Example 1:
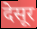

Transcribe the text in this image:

देसूर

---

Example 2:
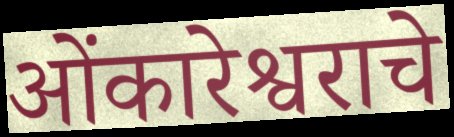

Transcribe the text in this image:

ओंकारेश्वराचे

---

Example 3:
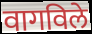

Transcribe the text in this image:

वागविले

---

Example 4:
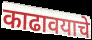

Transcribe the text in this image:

काढावयाचे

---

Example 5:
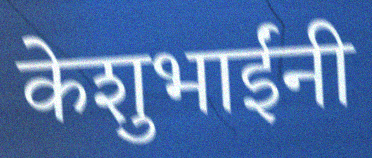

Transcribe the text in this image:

केशुभाईंनी